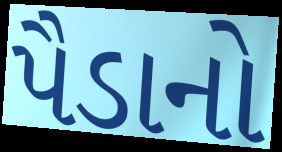
પૈડાનો